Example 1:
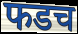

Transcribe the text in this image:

फडच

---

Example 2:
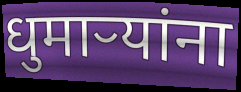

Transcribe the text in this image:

धुमाऱ्यांना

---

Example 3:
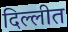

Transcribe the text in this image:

दिल्लीत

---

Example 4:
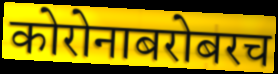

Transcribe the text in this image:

कोरोनाबरोबरच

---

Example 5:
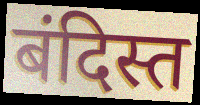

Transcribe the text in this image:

बंदिस्त